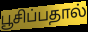
பூசிப்பதால்